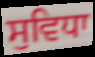
ਸੁਵਿਧਾ